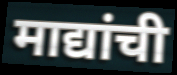
माद्यांची